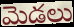
మెడలు